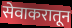
सेवाकरातून